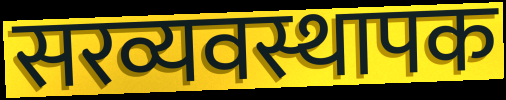
सरव्यवस्थापक